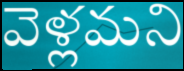
వెళ్లమని